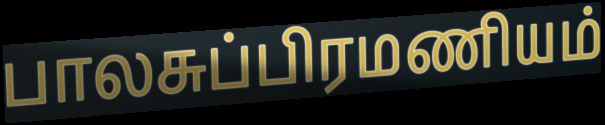
பாலசுப்பிரமணியம்